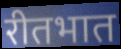
रीतभात